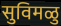
सुविमळु